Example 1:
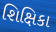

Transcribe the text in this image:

શિક્ષિકા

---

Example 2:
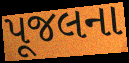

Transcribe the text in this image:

પૂજલના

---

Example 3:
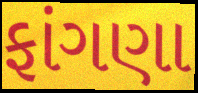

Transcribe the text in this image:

ફાંગણા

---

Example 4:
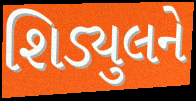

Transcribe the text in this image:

શિડ્યુલને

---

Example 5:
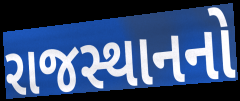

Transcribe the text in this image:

રાજસ્થાનનો